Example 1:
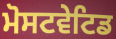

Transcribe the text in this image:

ਮੋਸਟਵੇਟਿਡ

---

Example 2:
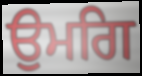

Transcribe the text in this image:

ਉਮਗਿ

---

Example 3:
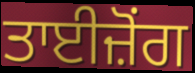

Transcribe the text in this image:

ਤਾਈਜ਼ੋਂਗ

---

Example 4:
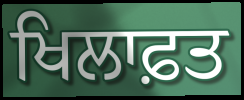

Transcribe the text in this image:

ਖਿਲਾਫ਼ਤ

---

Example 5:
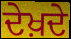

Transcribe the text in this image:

ਦੇਖ਼ਦੇ